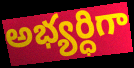
అభ్యర్ధిగా